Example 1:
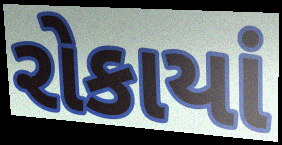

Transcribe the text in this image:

રોકાયાં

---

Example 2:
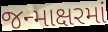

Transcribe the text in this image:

જન્માક્ષરમાં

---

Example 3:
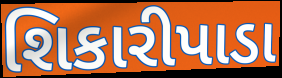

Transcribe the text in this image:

શિકારીપાડા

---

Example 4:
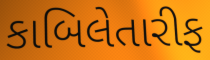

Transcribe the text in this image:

કાબિલેતારીફ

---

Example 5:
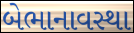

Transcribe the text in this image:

બેભાનાવસ્થા